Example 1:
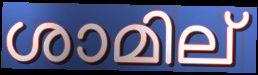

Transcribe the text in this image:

ശാമില്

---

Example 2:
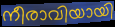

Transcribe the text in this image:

നീരാവിയായി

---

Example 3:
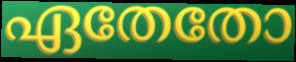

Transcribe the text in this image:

ഏതേതോ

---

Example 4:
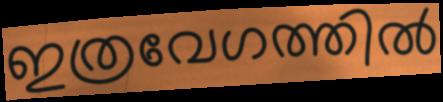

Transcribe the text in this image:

ഇത്രവേഗത്തിൽ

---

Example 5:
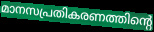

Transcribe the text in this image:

മാനസപ്രതികരണത്തിന്റെ